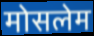
मोसलेम